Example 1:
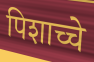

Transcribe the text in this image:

पिशाच्चे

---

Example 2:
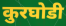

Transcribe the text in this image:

कुरघोडी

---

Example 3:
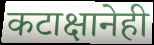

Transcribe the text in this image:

कटाक्षानेही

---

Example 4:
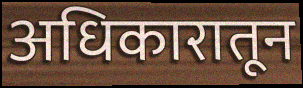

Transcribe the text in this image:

अधिकारातून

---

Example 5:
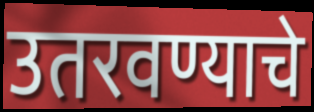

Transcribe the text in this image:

उतरवण्याचे